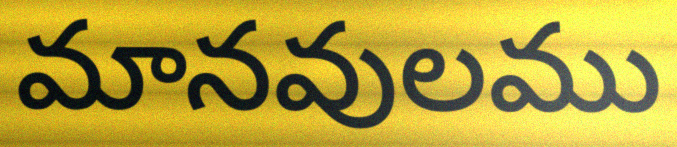
మానవులము